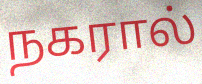
நகரால்